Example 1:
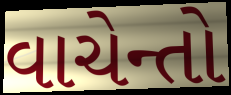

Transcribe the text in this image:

વાચેન્તો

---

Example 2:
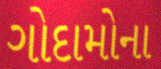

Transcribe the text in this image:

ગોદામોના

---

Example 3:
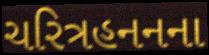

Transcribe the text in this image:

ચરિત્રહનનના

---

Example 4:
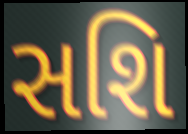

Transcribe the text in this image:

સશિ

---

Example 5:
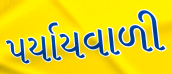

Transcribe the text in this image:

પર્યાયવાળી